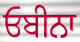
ਓਬੀਨਾ